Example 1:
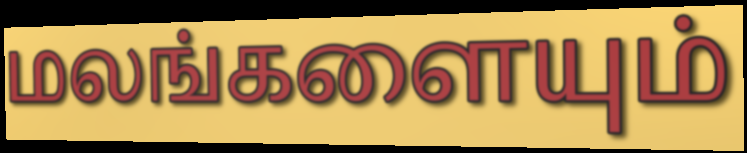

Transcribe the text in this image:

மலங்களையும்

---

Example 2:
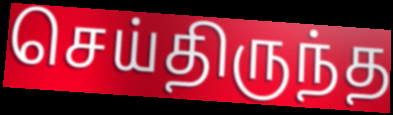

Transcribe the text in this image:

செய்திருந்த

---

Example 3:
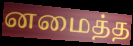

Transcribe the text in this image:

னமைத்த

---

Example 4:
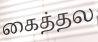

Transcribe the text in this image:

கைத்தல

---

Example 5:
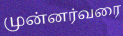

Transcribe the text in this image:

முன்னர்வரை